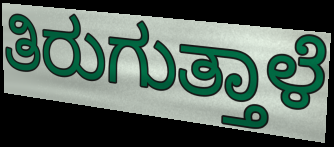
ತಿರುಗುತ್ತಾಳೆ